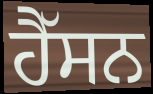
ਹੈੱਸਨ